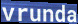
vrunda